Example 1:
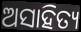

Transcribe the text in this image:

ଅସାହିତ୍ୟ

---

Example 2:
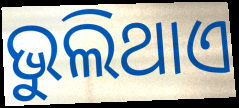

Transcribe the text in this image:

ଭୁଲିଥାଏ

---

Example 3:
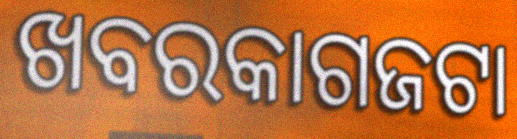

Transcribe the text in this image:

ଖବରକାଗଜଟା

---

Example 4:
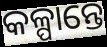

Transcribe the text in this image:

କଳ୍ପାନ୍ତେ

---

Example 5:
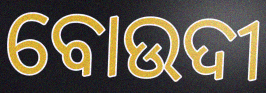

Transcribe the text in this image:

ବୋଉଦୀ